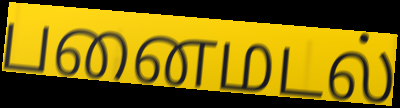
பனைமடல்